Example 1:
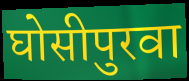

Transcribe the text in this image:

घोसीपुरवा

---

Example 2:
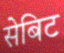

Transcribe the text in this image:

सेबिट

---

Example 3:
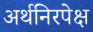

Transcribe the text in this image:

अर्थनिरपेक्ष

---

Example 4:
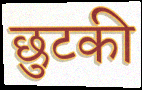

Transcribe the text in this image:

छुटकी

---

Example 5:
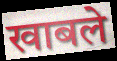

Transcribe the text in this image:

खाबले